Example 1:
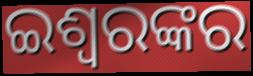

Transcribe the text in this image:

ଇଶ୍ୱରଙ୍କର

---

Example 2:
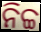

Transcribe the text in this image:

ନିଚ୍ଚ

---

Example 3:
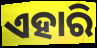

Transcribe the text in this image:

ଏହାରି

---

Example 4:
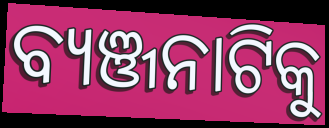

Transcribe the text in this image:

ବ୍ୟଞ୍ଜନାଟିକୁ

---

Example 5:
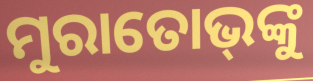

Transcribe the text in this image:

ମୁରାତୋଭ୍‌ଙ୍କୁ